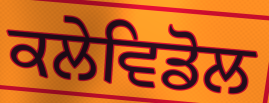
ਕਲੇਵਿਡੋਲ